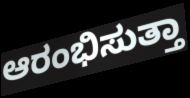
ಆರಂಭಿಸುತ್ತಾ